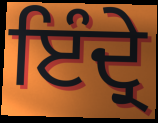
ਇੰਦ੍ਰੇ